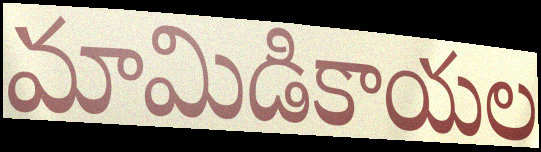
మామిడికాయల